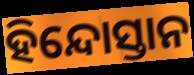
ହିନ୍ଦୋସ୍ତାନ